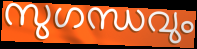
സുഗന്ധവും